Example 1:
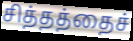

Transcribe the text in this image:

சித்தத்தைச்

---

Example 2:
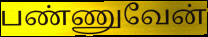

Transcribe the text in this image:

பண்ணுவேன்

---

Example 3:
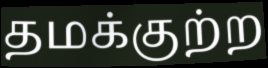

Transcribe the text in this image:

தமக்குற்ற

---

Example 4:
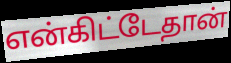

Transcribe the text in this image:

என்கிட்டேதான்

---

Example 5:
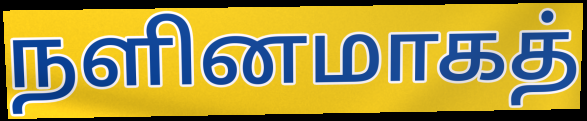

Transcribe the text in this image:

நளினமாகத்